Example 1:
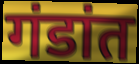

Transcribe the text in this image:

गंडांत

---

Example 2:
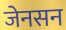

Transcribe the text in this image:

जेनसन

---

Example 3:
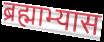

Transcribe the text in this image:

ब्रह्माभ्यास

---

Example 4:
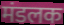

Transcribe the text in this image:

मंडलक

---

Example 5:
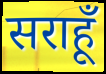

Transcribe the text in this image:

सराहूँ